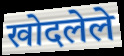
खोदलेले